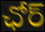
ఛోర్